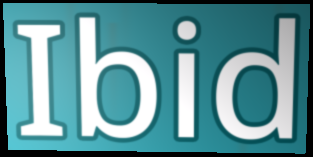
Ibid